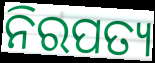
ନିରପତ୍ୟ